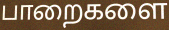
பாறைகளை